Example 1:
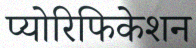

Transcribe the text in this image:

प्योरिफिकेशन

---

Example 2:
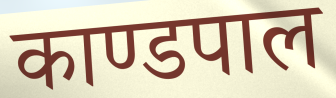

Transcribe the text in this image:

काण्डपाल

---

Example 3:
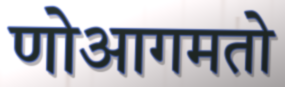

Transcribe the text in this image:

णोआगमतो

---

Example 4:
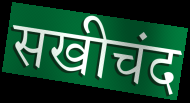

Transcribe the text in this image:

सखीचंद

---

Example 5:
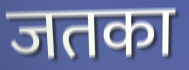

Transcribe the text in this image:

जतका